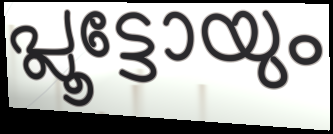
പ്ലൂട്ടോയും